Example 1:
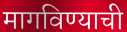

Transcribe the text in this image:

मागविण्याची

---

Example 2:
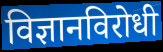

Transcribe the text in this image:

विज्ञानविरोधी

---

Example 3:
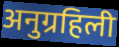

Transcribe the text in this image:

अनुग्रहिली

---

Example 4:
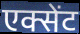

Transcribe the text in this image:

एक्सेंट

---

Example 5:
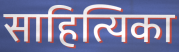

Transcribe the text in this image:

साहित्यिका